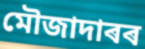
মৌজাদাৰৰ